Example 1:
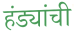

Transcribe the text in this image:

हंड्यांची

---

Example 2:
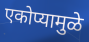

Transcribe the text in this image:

एकोप्यामुळे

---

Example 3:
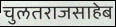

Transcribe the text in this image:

चुलतराजसाहेब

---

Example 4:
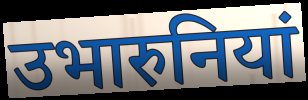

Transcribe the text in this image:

उभारुनियां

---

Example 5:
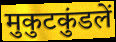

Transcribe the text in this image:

मुकुटकुंडलें